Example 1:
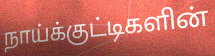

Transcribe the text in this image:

நாய்க்குட்டிகளின்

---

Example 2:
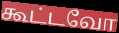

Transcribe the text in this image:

கூட்டவோ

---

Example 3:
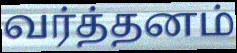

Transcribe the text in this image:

வர்த்தனம்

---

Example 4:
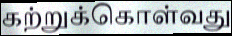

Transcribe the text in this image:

கற்றுக்கொள்வது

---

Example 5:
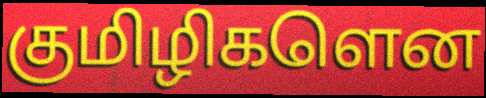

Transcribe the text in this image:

குமிழிகளென